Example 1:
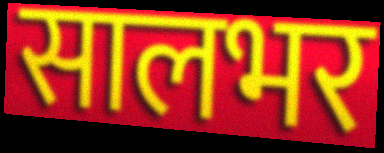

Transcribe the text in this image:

सालभर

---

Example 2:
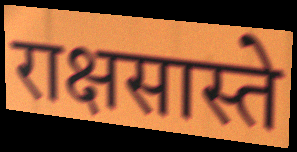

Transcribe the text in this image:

राक्षसास्ते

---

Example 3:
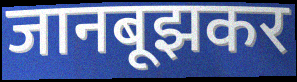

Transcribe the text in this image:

जानबूझकर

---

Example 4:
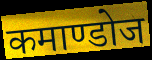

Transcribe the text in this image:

कमाण्डोज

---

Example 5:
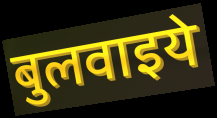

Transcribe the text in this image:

बुलवाइये